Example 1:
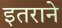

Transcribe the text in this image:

इतराने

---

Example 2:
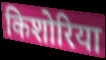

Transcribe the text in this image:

किशोरिया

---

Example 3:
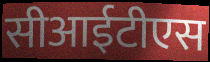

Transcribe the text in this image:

सीआईटीएस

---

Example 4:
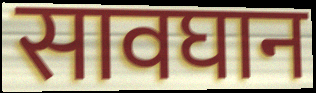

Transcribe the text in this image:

सावघान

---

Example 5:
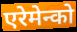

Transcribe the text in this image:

एरेमेन्को